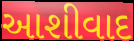
આશીવાદ